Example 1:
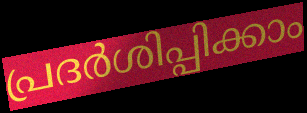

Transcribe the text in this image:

പ്രദർശിപ്പിക്കാം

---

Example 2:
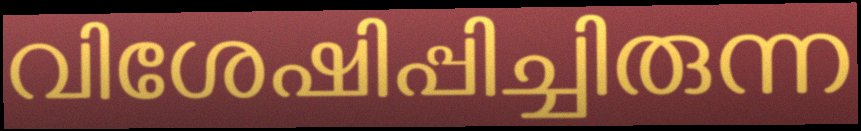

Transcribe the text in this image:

വിശേഷിപ്പിച്ചിരുന്ന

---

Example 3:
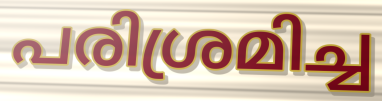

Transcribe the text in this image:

പരിശ്രമിച്ച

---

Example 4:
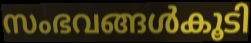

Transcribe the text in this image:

സംഭവങ്ങൾകൂടി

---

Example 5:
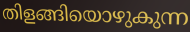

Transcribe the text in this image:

തിളങ്ങിയൊഴുകുന്ന